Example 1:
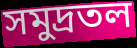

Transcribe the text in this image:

সমুদ্রতল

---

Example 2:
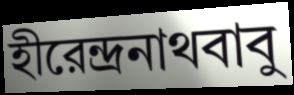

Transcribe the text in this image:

হীরেন্দ্রনাথবাবু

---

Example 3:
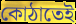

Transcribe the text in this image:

কোঠাতেই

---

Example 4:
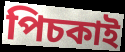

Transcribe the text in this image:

পিচকাই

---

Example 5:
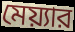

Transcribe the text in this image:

মেয়্যার